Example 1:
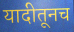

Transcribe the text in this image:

यादीतूनच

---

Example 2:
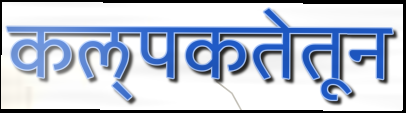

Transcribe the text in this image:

कल्पकतेतून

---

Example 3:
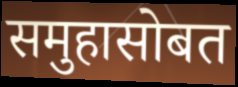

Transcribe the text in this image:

समुहासोबत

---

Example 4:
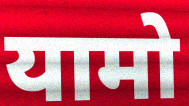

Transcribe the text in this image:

यामो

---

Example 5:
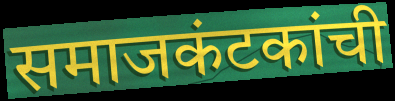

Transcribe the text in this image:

समाजकंटकांची